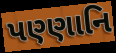
પણ્ણાનિ